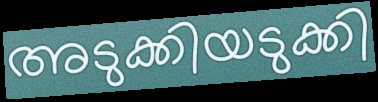
അടുക്കിയടുക്കി